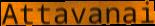
Attavanai